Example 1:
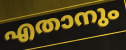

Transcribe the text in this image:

എതാനും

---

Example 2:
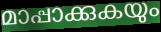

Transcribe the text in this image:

മാപ്പാക്കുകയും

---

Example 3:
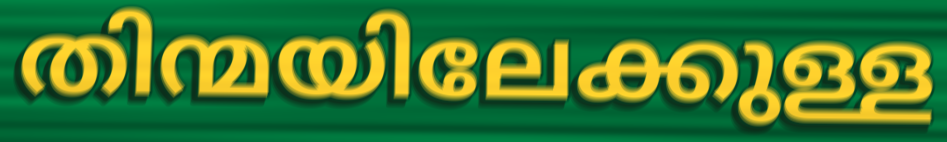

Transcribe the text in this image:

തിന്മയിലേക്കുള്ള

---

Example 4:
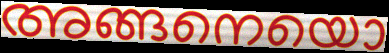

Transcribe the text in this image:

അങ്ങനെയൊ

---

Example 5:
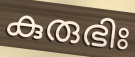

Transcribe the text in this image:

കുരുഭിഃ